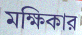
মক্ষিকার